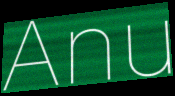
Anu